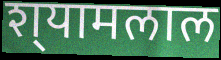
श्यामलाल